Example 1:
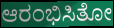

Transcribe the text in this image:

ಆರಂಭಿಸಿತೋ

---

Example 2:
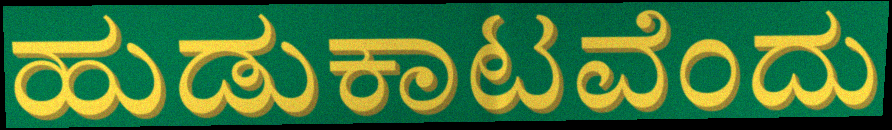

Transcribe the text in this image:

ಹುಡುಕಾಟವೆಂದು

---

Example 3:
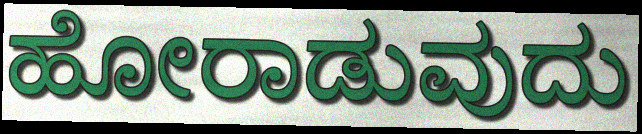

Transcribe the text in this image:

ಹೋರಾಡುವುದು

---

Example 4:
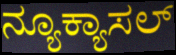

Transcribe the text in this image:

ನ್ಯೂಕ್ಯಾಸಲ್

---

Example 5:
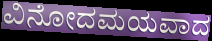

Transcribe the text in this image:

ವಿನೋದಮಯವಾದ